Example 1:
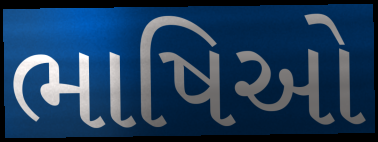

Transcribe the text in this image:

ભાષિઓ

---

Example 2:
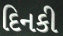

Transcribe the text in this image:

દિનકી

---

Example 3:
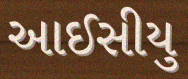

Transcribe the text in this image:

આઈસીયુ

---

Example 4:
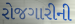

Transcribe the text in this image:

રોજગારીની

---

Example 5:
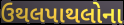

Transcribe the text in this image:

ઉથલપાથલોના